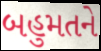
બહુમતને